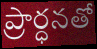
ప్రార్ధనతో